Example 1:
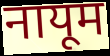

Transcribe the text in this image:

नायूम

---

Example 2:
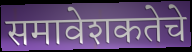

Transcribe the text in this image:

समावेशकतेचे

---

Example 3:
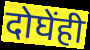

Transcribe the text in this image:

दोघेंही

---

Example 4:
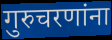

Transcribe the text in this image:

गुरुचरणांना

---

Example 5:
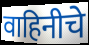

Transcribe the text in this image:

वाहिनीचे